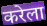
करेला